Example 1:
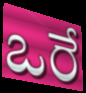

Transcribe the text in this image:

ఒరే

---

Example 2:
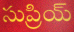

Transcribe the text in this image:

సుప్రియ్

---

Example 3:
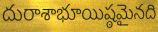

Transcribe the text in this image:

దురాశాభూయిష్ఠమైనది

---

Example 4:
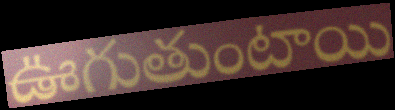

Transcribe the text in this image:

ఊగుతుంటాయి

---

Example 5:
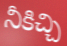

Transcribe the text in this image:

నీకిచ్చి